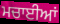
ਮਚਾਈਆਂ